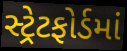
સ્ટ્રેટફોર્ડમાં